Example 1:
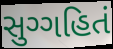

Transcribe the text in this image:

સુગ્ગહિતં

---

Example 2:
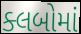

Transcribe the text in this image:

ક્લબોમાં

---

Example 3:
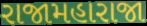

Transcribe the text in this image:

રાજામહારાજા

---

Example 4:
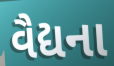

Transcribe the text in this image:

વૈદ્યના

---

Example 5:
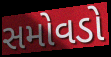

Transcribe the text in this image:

સમોવડો